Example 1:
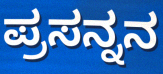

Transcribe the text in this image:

ಪ್ರಸನ್ನನ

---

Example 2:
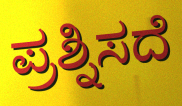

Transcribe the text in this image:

ಪ್ರಶ್ನಿಸದೆ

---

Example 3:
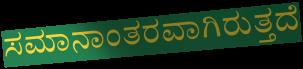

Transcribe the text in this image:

ಸಮಾನಾಂತರವಾಗಿರುತ್ತದೆ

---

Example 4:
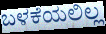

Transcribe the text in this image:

ಬಳಕೆಯಲಿಲ್ಲ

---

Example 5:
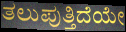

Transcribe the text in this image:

ತಲುಪುತ್ತಿದೆಯೇ